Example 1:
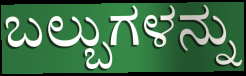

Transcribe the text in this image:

ಬಲ್ಬುಗಳನ್ನು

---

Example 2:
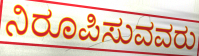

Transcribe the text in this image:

ನಿರೂಪಿಸುವವರು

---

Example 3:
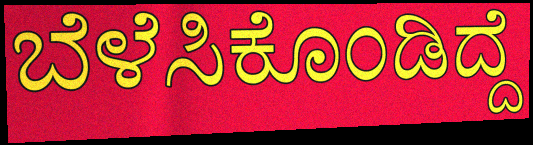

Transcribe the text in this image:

ಬೆಳೆಸಿಕೊಂಡಿದ್ದೆ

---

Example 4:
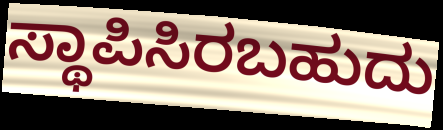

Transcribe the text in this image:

ಸ್ಥಾಪಿಸಿರಬಹುದು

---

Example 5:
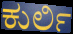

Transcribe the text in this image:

ಕುರ್ಲಿ